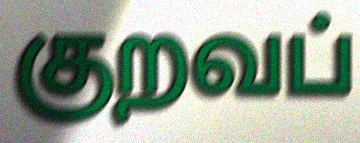
குறவப்